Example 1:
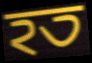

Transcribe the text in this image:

হত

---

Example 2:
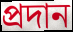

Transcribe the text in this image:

প্রদান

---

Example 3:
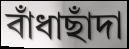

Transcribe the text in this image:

বাঁধাছাঁদা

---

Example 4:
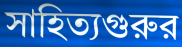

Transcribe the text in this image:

সাহিত্যগুরুর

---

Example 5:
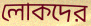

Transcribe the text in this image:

লোকদের